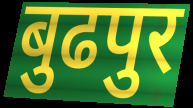
बुढपुर